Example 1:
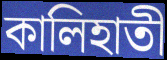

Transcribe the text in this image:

কালিহাতী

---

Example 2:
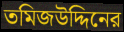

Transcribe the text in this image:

তমিজউদ্দিনের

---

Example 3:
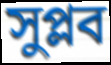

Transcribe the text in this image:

সুপ্লব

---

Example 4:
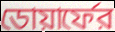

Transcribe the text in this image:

ডোয়ার্ফের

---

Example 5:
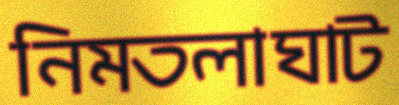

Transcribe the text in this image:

নিমতলাঘাট